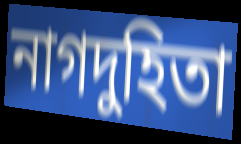
নাগদুহিতা